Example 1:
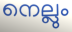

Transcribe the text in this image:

നെല്ലും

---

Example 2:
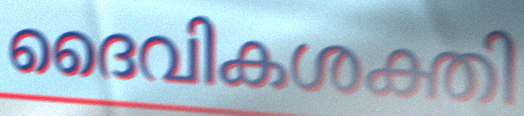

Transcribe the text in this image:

ദൈവികശക്തി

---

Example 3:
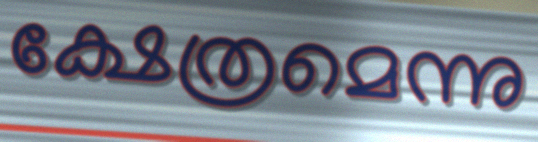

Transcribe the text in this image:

ക്ഷേത്രമെന്നു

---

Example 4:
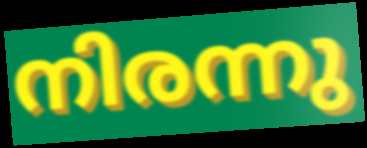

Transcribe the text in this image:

നിരന്നു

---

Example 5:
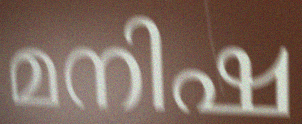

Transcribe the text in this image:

മനിഷ